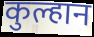
कुल्हान